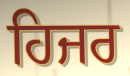
ਹਿਜਰ